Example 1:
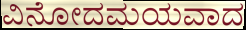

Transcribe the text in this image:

ವಿನೋದಮಯವಾದ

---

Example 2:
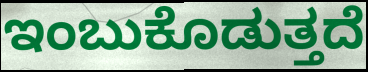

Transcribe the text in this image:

ಇಂಬುಕೊಡುತ್ತದೆ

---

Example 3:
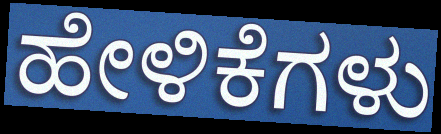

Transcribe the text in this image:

ಹೇಳಿಕೆಗಳು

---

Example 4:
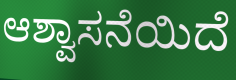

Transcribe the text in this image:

ಆಶ್ವಾಸನೆಯಿದೆ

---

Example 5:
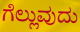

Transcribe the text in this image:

ಗೆಲ್ಲುವುದು